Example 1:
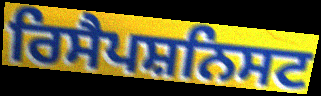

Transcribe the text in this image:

ਰਿਸੈਪਸ਼ਨਿਸਟ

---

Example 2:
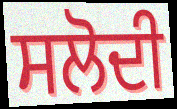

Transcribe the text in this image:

ਸਲੋਦੀ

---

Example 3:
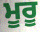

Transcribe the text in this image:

ਮੂਰੂ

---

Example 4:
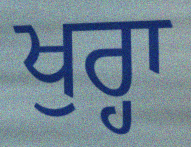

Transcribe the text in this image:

ਖੁਰ੍ਹਾ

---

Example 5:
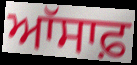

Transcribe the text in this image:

ਆੱਸਾਫ਼